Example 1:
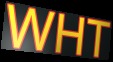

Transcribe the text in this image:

WHT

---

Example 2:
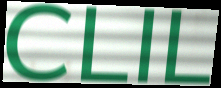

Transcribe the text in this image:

CLIL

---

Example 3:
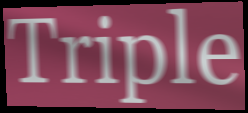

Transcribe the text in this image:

Triple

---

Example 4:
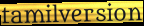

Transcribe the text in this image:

tamilversion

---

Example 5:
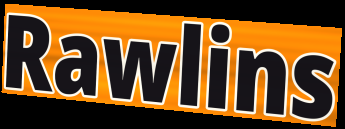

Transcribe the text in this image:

Rawlins